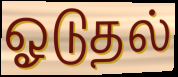
ஓடுதல்